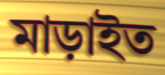
মাড়াইত